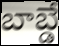
బాబ్డే